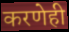
करणेही